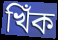
খিঁক